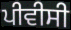
ਪੀਵੀਸੀ